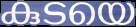
കുടയെ